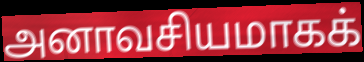
அனாவசியமாகக்